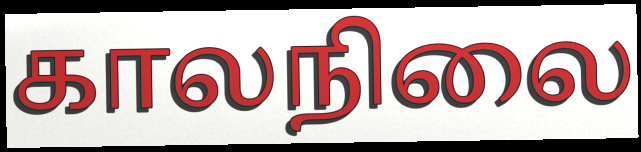
காலநிலை